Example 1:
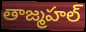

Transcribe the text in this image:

తాజ్మహల్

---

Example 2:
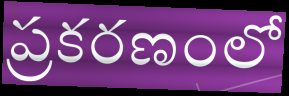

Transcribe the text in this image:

ప్రకరణంలో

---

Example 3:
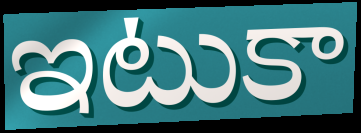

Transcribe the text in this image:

ఇటుకా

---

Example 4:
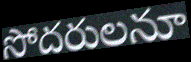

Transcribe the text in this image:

సోదరులనూ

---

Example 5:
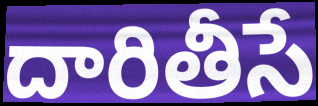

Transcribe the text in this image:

దారితీసే